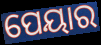
ପେୟାର